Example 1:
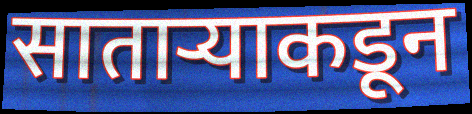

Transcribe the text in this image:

साताऱ्याकडून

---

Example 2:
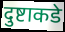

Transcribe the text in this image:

दुष्टाकडे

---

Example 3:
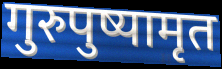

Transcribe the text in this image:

गुरुपुष्यामृत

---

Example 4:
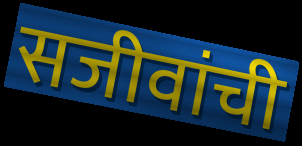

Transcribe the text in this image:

सजीवांची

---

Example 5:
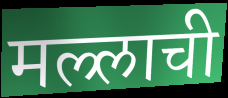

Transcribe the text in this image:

मल्लाची